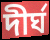
দীৰ্ঘ